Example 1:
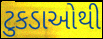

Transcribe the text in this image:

ટુકડાઓથી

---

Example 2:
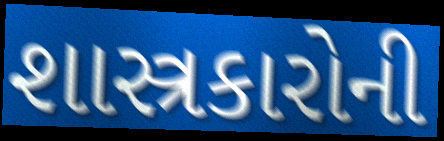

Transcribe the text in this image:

શાસ્ત્રકારોની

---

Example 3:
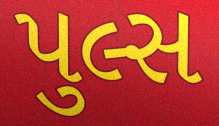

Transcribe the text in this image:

પુલ્સ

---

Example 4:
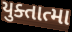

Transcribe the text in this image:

યુક્તાત્મા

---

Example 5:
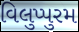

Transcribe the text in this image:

વિલુપ્પુરમ